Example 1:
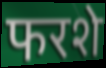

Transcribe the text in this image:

फरशे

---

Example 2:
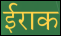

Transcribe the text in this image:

ईराक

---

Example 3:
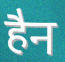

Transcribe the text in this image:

हैन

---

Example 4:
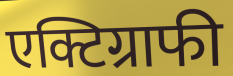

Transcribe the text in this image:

एक्टिग्राफी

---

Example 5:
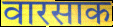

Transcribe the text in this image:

वारसाक